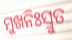
ମୁଖନିଃସ୍ରୁତ